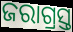
ଜରାଗ୍ରସ୍ତ